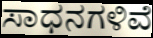
ಸಾಧನಗಳಿವೆ